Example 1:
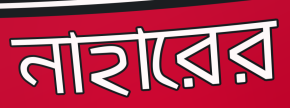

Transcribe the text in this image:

নাহারের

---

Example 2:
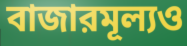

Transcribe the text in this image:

বাজারমূল্যও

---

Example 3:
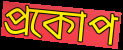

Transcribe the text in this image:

প্রকোপ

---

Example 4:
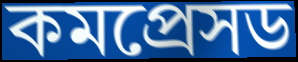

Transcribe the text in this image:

কমপ্রেসড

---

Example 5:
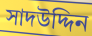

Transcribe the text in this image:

সাদউদ্দিন